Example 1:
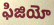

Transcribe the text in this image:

ఫిజియో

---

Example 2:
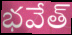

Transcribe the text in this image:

భవేత్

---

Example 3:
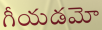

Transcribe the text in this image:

గీయడమో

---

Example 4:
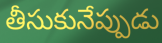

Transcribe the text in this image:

తీసుకునేప్పుడు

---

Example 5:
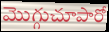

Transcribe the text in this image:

మొగ్గుచూపారో